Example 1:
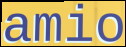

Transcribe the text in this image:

amio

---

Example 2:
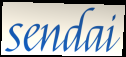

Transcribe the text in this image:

sendai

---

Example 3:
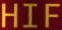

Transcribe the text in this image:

HIF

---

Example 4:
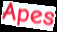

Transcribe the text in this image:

Apes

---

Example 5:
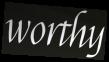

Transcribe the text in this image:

worthy